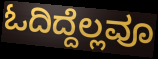
ಓದಿದ್ದೆಲ್ಲವೂ